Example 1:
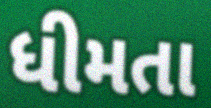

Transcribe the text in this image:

ધીમતા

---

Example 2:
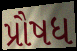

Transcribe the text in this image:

પ્રૌષધ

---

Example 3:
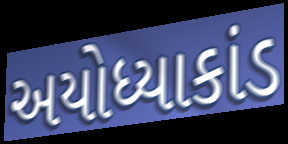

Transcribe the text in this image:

અયોધ્યાકાંડ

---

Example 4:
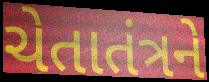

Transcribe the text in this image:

ચેતાતંત્રને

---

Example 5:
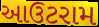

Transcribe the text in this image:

આઉટરામ